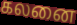
கலனை